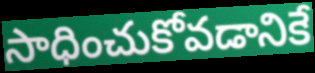
సాధించుకోవడానికే